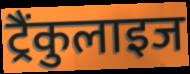
ट्रैंकुलाइज